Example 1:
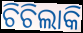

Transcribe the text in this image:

ଚିଚିଲାକି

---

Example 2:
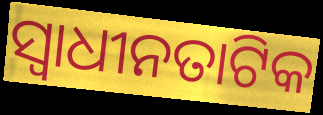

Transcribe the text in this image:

ସ୍ୱାଧୀନତାଟିକ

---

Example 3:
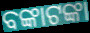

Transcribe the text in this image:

ବଙ୍କାଟଙ୍କା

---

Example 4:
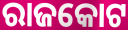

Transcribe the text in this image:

ରାଜକୋଟ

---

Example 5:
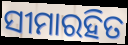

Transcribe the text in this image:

ସୀମାରହିତ